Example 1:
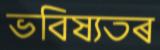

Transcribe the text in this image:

ভবিষ্যতৰ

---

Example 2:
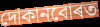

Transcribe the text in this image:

দোকানবোৰত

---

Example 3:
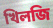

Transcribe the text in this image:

খিলজি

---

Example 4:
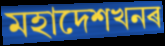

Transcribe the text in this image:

মহাদেশখনৰ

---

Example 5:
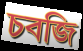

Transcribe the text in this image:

চবজি